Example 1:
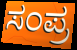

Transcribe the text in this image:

ಸಂಪ್ರ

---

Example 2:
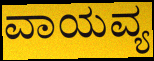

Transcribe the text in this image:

ವಾಯವ್ಯ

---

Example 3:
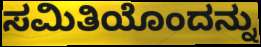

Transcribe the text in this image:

ಸಮಿತಿಯೊಂದನ್ನು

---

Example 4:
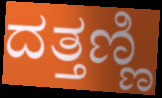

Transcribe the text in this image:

ದತ್ತಣ್ಣಿ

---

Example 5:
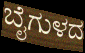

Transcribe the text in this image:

ಬೈಗುಳದ